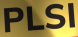
PLSI